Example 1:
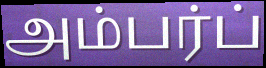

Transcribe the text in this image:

அம்பர்ப்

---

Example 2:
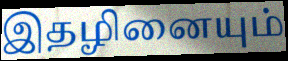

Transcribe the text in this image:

இதழினையும்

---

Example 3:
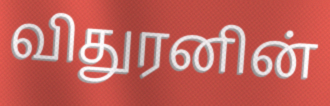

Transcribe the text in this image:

விதுரனின்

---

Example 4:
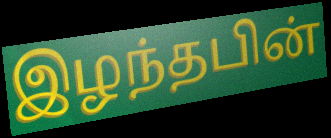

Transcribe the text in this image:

இழந்தபின்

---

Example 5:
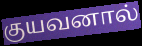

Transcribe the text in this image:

குயவனால்